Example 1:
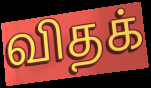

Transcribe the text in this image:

விதக்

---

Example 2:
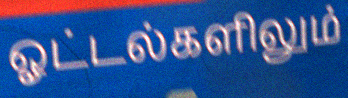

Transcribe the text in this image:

ஓட்டல்களிலும்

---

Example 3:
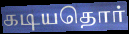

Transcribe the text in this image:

கடியதொர்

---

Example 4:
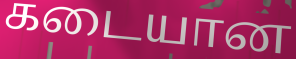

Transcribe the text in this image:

கடையான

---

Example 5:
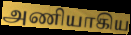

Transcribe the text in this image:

அணியாகிய